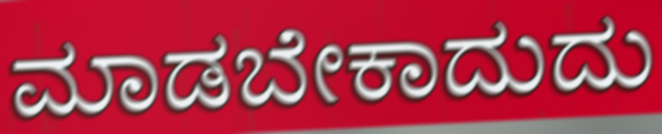
ಮಾಡಬೇಕಾದುದು